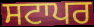
ਸਟਾਪਰ